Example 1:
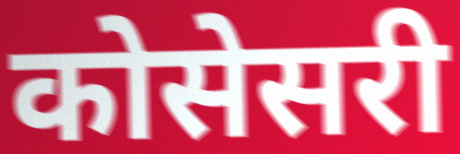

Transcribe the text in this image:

कोसेसरी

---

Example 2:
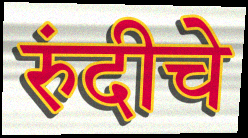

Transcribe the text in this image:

रुंदीचे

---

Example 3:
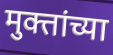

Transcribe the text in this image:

मुक्तांच्या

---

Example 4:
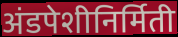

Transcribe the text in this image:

अंडपेशीनिर्मिती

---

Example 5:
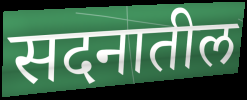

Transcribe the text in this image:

सदनातील